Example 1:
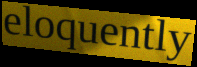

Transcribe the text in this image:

eloquently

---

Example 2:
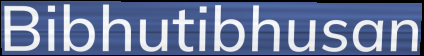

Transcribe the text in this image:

Bibhutibhusan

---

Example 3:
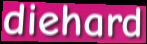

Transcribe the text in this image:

diehard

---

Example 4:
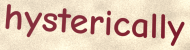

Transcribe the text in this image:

hysterically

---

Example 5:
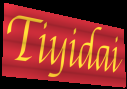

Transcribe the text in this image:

Tiyidai